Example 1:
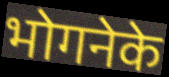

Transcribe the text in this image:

भोगनेके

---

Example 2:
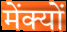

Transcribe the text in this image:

मेंक्यों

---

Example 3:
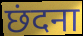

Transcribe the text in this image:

छंदना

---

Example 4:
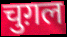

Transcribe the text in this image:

चुग़ल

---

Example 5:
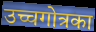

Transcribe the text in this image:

उच्चगोत्रका